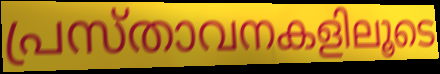
പ്രസ്താവനകളിലൂടെ